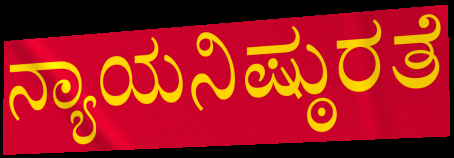
ನ್ಯಾಯನಿಷ್ಠುರತೆ